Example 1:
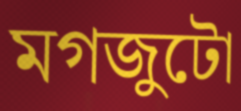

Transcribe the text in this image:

মগজুটো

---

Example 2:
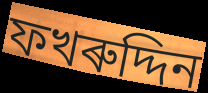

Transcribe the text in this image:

ফখৰুদ্দিন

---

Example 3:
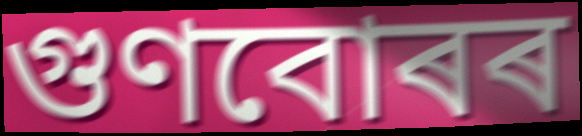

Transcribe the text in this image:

গুণবোৰৰ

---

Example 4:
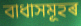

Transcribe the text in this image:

বাধাসমূহৰ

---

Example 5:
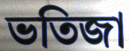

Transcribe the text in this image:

ভতিজা